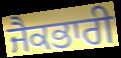
ਜੈਕਭਾਰੀ